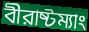
বীরাষ্টম্যাং